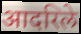
आदरिले